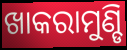
ଖାକରାମୁଣ୍ଡି